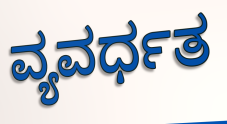
ವ್ಯವರ್ಧತ